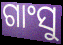
ଗାଂସୁ